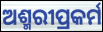
ଅଶ୍ମରୀପ୍ରକର୍ମ